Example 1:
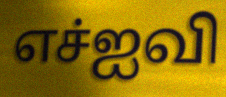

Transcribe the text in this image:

எச்ஐவி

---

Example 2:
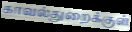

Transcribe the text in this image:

காவல்துறைக்குள்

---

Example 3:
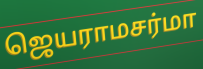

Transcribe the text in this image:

ஜெயராமசர்மா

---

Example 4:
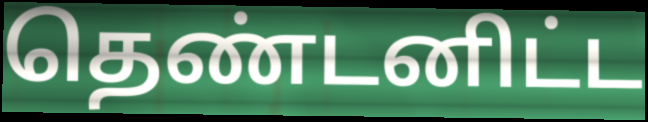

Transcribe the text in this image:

தெண்டனிட்ட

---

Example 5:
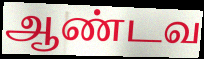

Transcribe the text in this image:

ஆண்டவ